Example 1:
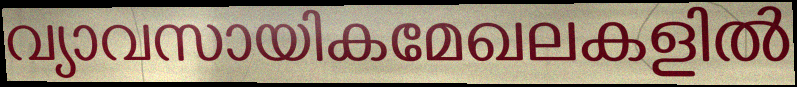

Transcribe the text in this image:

വ്യാവസായികമേഖലകളിൽ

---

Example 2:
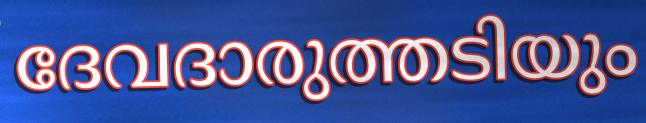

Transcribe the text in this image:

ദേവദാരുത്തടിയും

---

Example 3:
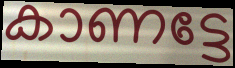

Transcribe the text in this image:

കാണട്ടേ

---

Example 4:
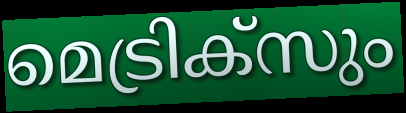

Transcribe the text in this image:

മെട്രിക്സും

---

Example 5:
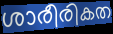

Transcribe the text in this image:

ശാരീരികത